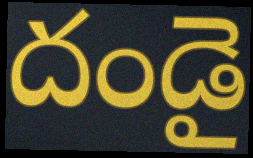
దండై